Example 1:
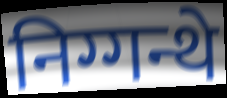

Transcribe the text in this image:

निग्गन्थे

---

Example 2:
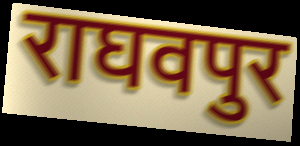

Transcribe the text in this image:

राघवपुर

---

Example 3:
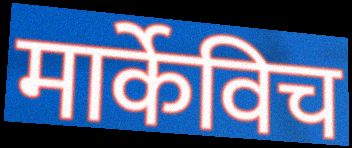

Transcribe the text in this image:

मार्केविच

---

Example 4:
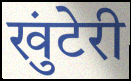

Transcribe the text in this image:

खुंटेरी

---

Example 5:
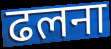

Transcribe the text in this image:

ढलना